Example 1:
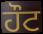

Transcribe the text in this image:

ਹੌਟ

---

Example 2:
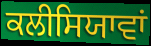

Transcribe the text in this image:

ਕਲੀਸਿਯਾਵਾਂ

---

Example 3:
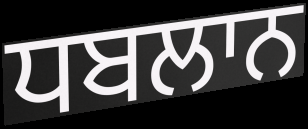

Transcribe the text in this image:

ਧਬਲਾਨ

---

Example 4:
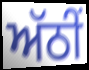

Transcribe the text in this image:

ਅੱਠੀਂ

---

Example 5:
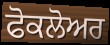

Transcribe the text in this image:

ਫੋਕਲੋਅਰ